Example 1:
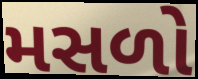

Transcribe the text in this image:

મસળો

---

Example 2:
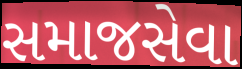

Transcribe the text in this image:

સમાજસેવા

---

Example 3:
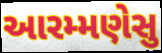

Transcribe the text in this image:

આરમ્મણેસુ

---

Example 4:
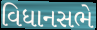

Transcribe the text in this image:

વિધાનસભે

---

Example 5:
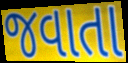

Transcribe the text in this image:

જવાતા